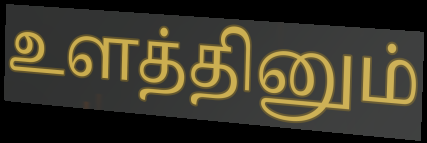
உளத்தினும்